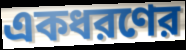
একধরণের